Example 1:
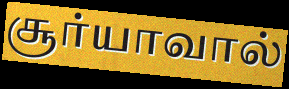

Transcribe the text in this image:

சூர்யாவால்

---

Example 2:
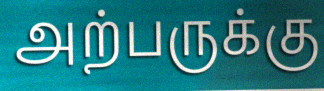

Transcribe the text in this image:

அற்பருக்கு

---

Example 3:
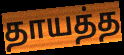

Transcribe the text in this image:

தாயத்த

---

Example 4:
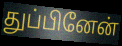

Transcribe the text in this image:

துப்பினேன்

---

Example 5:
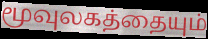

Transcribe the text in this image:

மூவுலகத்தையும்